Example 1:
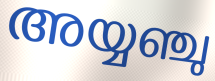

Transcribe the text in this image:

അയ്യഞ്ചു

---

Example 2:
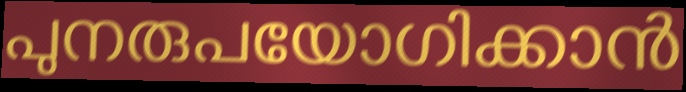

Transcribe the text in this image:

പുനരുപയോഗിക്കാൻ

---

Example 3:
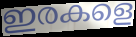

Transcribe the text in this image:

ഇരകളെ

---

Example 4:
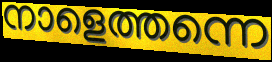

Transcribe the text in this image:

നാളെത്തന്നെ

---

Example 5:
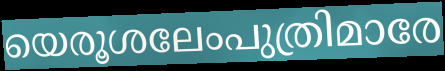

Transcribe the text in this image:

യെരൂശലേംപുത്രിമാരേ